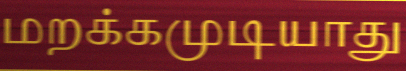
மறக்கமுடியாது